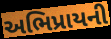
અભિપ્રાયની